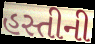
હસ્તીની